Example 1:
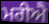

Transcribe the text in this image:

ਮਰੀਐ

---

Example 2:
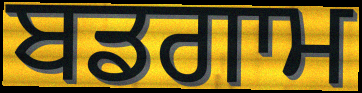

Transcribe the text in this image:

ਬਡਗਾਮ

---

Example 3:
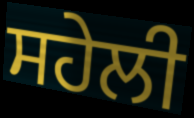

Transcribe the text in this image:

ਸਹੇਲੀ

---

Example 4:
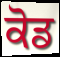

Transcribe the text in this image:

ਕੋਡ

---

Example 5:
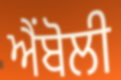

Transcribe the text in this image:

ਐਂਬੋਲੀ